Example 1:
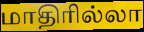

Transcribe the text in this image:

மாதிரில்லா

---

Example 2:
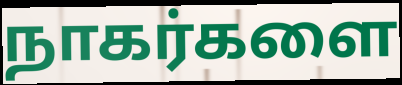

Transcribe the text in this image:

நாகர்களை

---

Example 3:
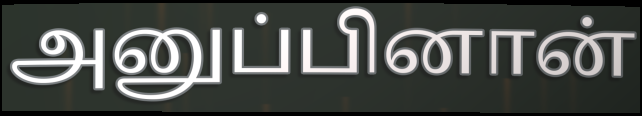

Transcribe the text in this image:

அனுப்பினான்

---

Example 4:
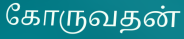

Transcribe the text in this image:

கோருவதன்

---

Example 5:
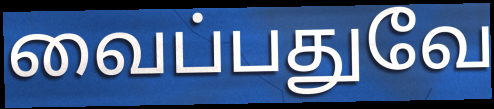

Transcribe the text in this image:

வைப்பதுவே